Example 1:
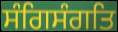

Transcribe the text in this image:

ਸੰਗਿਸੰਗਤਿ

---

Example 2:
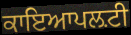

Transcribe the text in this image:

ਕਾਇਆਪਲ਼ਟੀ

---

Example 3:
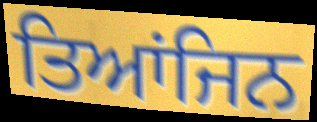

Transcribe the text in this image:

ਤਿਆਂਜਿਨ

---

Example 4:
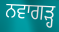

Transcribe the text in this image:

ਨਵਾਗੜ੍ਹ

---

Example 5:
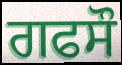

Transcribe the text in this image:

ਗਫਸੌ